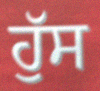
ਹੁੱਸ